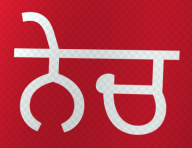
ਨੇਚ